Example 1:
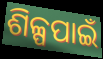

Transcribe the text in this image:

ଶିଳ୍ପପାଇଁ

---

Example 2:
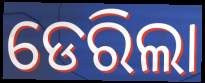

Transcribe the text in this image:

ଡେରିଲା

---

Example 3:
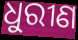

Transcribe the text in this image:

ଧୁରୀଣ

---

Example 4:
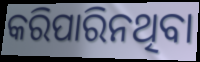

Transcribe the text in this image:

କରିପାରିନଥିବା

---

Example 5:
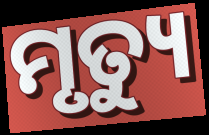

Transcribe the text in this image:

ମୃତ୍ୟୁ